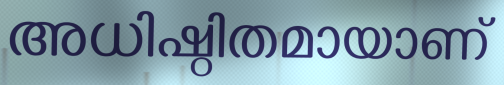
അധിഷ്ഠിതമായാണ്